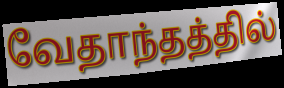
வேதாந்தத்தில்